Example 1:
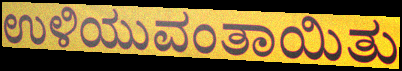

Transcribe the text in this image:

ಉಳಿಯುವಂತಾಯಿತು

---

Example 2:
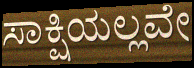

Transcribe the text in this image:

ಸಾಕ್ಷಿಯಲ್ಲವೇ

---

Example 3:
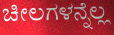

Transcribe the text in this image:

ಚೀಲಗಳನ್ನೆಲ್ಲ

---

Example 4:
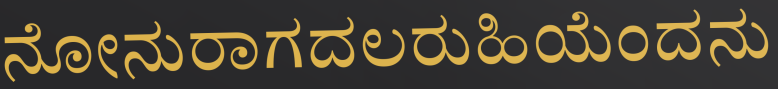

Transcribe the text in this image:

ನೋನುರಾಗದಲರುಹಿಯೆಂದನು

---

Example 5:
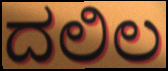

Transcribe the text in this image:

ದಲಿಲ